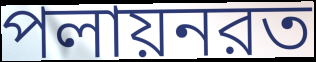
পলায়নরত